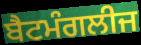
ਬੈਟਮੰਗਲੀਜ